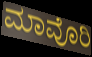
ಮಾವೊರಿ